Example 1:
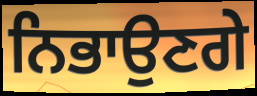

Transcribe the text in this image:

ਨਿਭਾਉਣਗੇ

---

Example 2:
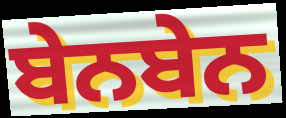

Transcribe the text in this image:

ਬੇਨਬੇਨ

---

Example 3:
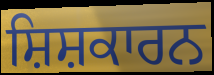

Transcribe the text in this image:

ਸ਼ਿਸ਼ਕਾਰਨ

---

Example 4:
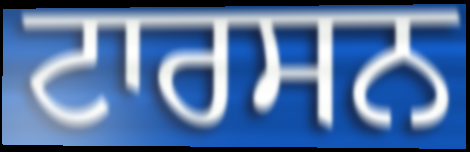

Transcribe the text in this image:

ਟਾਰਸਨ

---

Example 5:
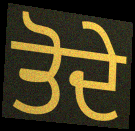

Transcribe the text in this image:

ਤੋਦੇ